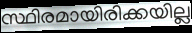
സ്ഥിരമായിരിക്കയില്ല